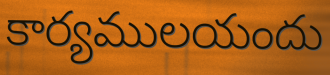
కార్యములయందు